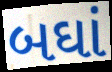
બઘાં